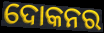
ଦୋକନର